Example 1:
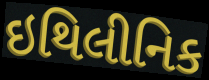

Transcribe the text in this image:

ઇથિલીનિક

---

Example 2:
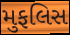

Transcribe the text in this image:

મુફલિસ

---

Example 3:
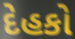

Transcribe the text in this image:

દેહકો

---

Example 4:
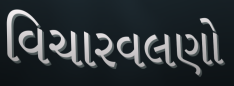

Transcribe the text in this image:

વિચારવલણો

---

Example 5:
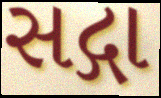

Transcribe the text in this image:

સદ્ગા